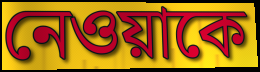
নেওয়াকে